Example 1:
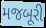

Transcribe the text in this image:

મજબૂરી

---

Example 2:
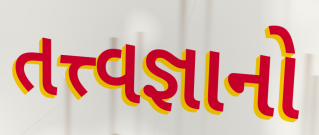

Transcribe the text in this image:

તત્ત્વજ્ઞાનો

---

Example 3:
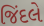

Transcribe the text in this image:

જિંદલે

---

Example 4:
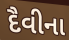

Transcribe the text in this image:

દૈવીના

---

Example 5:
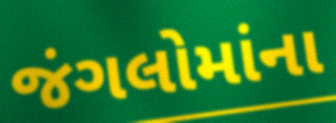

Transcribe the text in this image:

જંગલોમાંના